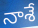
నాశే